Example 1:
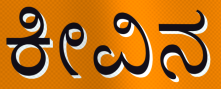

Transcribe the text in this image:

ಕೀವಿನ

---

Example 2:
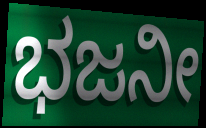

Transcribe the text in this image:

ಭಜನೀ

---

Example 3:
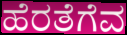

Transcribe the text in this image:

ಹೆರತೆಗೆವ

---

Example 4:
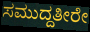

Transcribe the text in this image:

ಸಮುದ್ದತೀರೇ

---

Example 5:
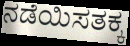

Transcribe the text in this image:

ನಡೆಯಿಸತಕ್ಕ